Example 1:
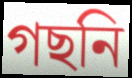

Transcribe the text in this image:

গছনি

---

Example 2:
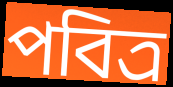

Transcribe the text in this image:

পবিত্ৰ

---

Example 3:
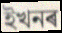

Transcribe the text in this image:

ইখনৰ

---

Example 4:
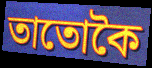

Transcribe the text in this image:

তাতোকৈ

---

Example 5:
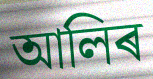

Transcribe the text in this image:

আলিৰ